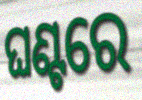
ଘଣ୍ଟରେ